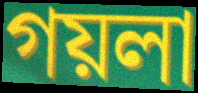
গয়লা